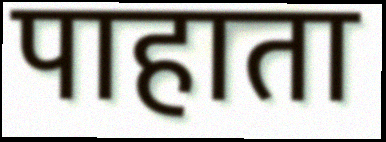
पाहाता